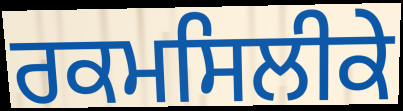
ਰਕਮਸਿਲੀਕੇ